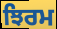
ਝਿਰਮ